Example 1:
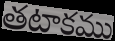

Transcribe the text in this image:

తటాకము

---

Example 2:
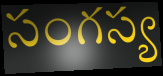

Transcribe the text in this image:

సంగస్య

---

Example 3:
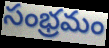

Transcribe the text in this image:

సంభ్రమం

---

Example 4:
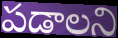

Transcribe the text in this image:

పడాలని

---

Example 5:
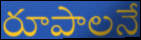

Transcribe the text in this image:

రూపాలనే